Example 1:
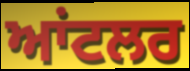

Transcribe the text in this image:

ਆਂਟਲਰ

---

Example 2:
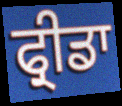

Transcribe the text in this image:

ਫ੍ਰੀਡਾ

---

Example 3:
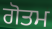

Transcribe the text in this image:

ਗੋਤਮ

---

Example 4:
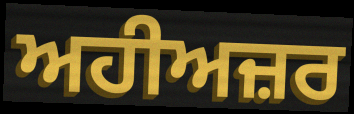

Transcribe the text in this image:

ਅਹੀਅਜ਼ਰ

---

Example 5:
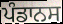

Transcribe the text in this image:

ਪੰਡਾਨਸ